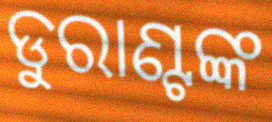
ଡୁରାଣ୍ଟଙ୍କ